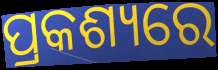
ପ୍ରକଶ୍ୟରେ